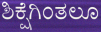
ಶಿಕ್ಷೆಗಿಂತಲೂ